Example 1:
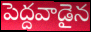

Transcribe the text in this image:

పెద్దవాడైన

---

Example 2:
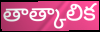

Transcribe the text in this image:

తాత్కాలిక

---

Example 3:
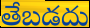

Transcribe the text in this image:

తేబడదు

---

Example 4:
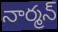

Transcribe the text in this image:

నార్మన్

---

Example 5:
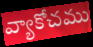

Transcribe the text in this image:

వ్యాకోచము